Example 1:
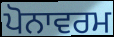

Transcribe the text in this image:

ਪੋਨਾਵਰਮ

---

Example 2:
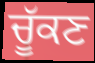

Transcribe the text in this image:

ਚੂੱਕਣ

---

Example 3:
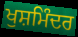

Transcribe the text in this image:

ਖੁਸ਼ਮਿੰਦਰ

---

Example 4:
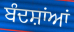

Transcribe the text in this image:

ਬੰਦਸ਼ਾਂਆਂ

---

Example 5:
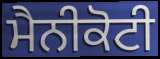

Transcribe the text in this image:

ਮੈਨੀਕੋਟੀ